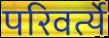
परिवर्त्ये